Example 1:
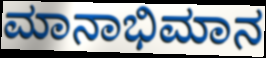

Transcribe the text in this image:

ಮಾನಾಭಿಮಾನ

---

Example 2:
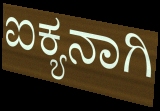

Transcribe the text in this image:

ಐಕ್ಯನಾಗಿ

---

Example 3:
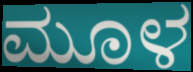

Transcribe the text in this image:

ಮೂಳ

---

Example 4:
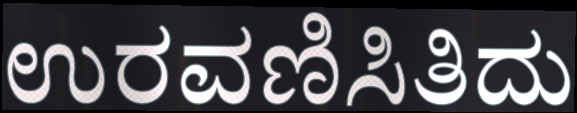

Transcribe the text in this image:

ಉರವಣಿಸಿತಿದು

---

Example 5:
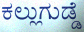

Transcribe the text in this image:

ಕಲ್ಲುಗುಡ್ಡೆ